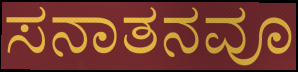
ಸನಾತನವೂ